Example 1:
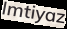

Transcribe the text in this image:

Imtiyaz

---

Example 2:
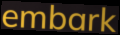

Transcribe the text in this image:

embark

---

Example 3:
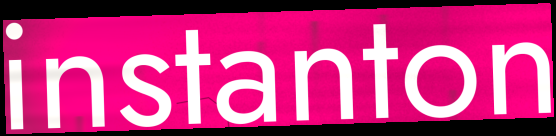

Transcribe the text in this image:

instanton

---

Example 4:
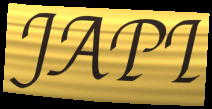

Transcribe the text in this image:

JAPI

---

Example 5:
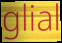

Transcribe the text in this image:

glial